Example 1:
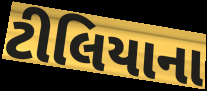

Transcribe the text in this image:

ટીલિયાના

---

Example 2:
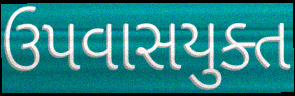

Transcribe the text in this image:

ઉપવાસયુક્ત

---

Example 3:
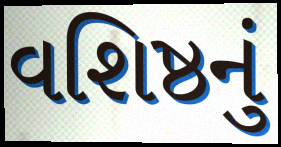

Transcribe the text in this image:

વશિષ્ઠનું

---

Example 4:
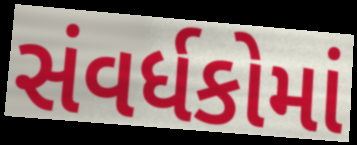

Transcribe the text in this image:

સંવર્ધકોમાં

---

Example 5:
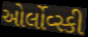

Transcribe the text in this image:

ઓર્લોવ્સ્કી